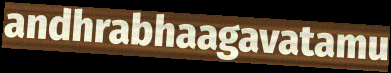
andhrabhaagavatamu